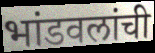
भांडवलांची